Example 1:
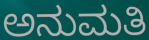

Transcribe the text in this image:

ಅನುಮತಿ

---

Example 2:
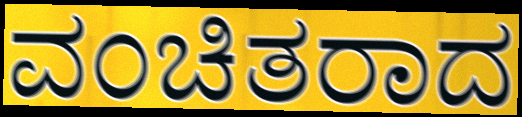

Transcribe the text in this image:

ವಂಚಿತರಾದ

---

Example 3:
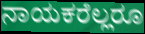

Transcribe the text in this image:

ನಾಯಕರೆಲ್ಲರೂ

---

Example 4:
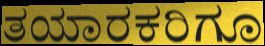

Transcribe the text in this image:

ತಯಾರಕರಿಗೂ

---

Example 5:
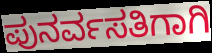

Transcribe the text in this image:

ಪುನರ್ವಸತಿಗಾಗಿ